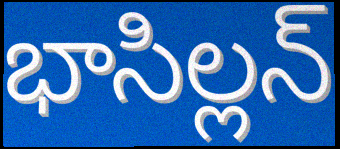
భాసిల్లన్